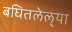
बघितलेल्या